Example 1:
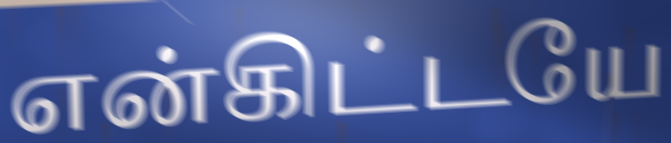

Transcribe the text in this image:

என்கிட்டயே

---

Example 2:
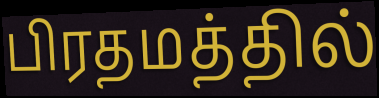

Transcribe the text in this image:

பிரதமத்தில்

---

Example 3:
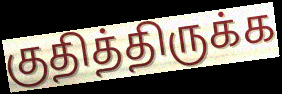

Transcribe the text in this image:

குதித்திருக்க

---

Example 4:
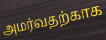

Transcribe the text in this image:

அமர்வதற்காக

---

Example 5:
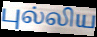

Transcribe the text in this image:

புல்லிய